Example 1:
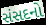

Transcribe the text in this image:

સંસદનો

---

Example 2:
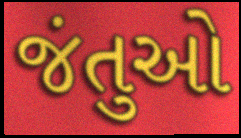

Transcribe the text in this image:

જંતુઓ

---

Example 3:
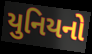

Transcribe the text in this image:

યુનિયનો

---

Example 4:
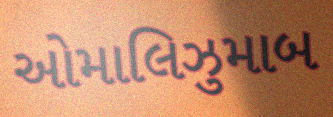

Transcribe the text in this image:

ઓમાલિઝુમાબ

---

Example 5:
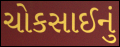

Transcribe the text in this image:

ચોકસાઈનું